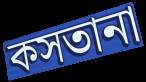
কসতানা